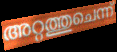
അറ്റത്തുചെന്ന്